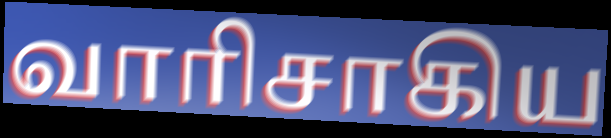
வாரிசாகிய